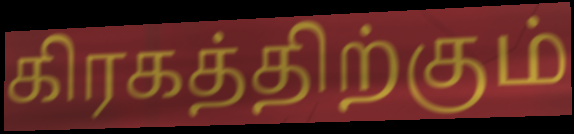
கிரகத்திற்கும்